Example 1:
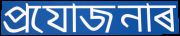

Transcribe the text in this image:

প্ৰযোজনাৰ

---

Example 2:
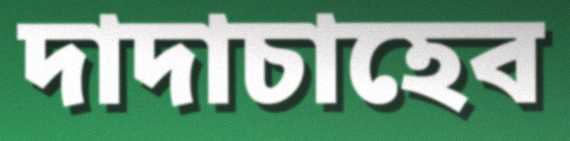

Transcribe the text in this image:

দাদাচাহেব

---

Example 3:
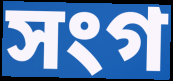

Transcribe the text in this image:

সংগ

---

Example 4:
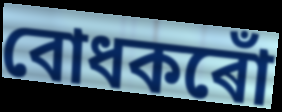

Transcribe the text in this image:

বোধকৰোঁ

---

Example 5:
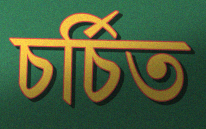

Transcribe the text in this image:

চৰ্চিত